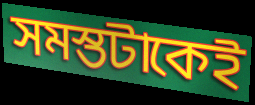
সমস্তটাকেই